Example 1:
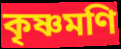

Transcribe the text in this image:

কৃষ্ণমণি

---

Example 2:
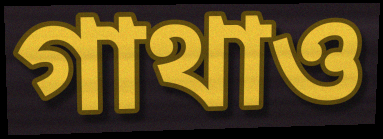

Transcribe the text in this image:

গাথাও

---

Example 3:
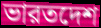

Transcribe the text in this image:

ভারতদেশ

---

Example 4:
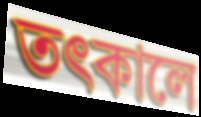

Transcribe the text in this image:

তৎকালে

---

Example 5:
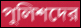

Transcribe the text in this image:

পুলিশদের